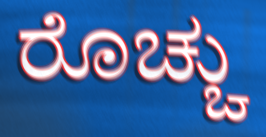
ರೊಚ್ಚು